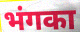
भंगका